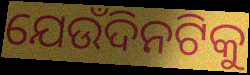
ଯେଉଁଦିନଟିକୁ